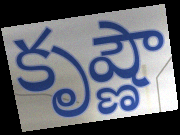
కృష్ణౌ